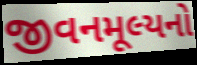
જીવનમૂલ્યનો